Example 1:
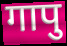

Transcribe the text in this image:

गापु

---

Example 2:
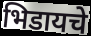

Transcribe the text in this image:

भिडायचे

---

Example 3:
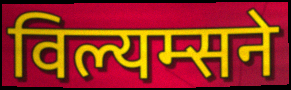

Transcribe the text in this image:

विल्यम्सने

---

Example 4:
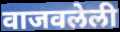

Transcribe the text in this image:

वाजवलेली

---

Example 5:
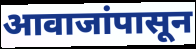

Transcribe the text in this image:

आवाजांपासून